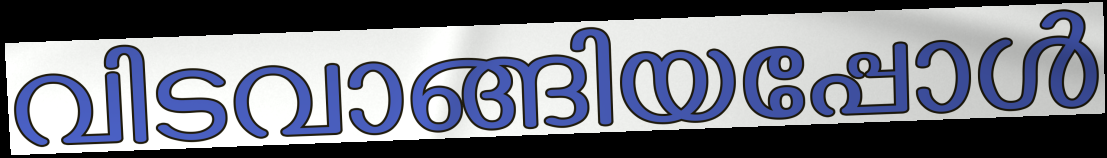
വിടവാങ്ങിയപ്പോൾ